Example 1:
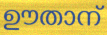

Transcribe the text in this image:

ഊതാന്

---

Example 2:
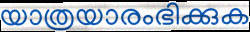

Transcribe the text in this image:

യാത്രയാരംഭിക്കുക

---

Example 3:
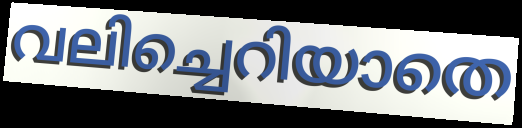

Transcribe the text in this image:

വലിച്ചെറിയാതെ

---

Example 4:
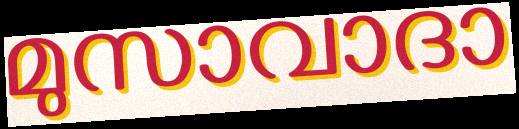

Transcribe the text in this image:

മുസാവാദാ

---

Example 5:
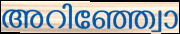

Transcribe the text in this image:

അറിഞ്ഞ്വോ